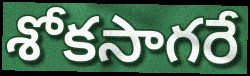
శోకసాగరే